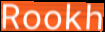
Rookh